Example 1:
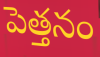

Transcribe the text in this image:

పెత్తనం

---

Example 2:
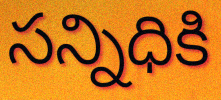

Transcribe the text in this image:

సన్నిధికి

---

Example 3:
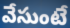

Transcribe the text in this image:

వేసుంటే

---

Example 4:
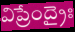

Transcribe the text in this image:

విప్రేంద్రైః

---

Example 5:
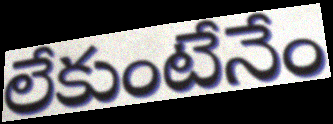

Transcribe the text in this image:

లేకుంటేనేం